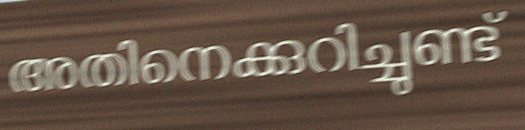
അതിനെക്കുറിച്ചുണ്ട്